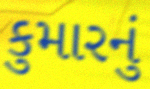
કુમારનું